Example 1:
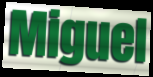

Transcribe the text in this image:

Miguel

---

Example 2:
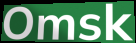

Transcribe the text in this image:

Omsk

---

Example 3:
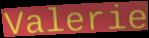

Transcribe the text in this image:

Valerie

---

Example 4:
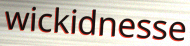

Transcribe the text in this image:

wickidnesse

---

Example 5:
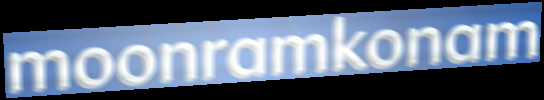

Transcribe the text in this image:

moonramkonam